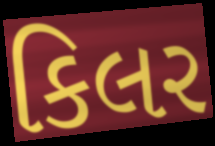
કિલર